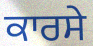
ਕਾਰਸੇ